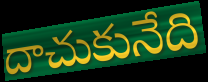
దాచుకునేది